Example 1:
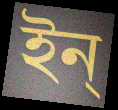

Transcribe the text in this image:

ইন্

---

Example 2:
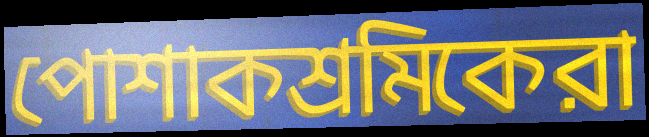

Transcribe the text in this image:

পোশাকশ্রমিকেরা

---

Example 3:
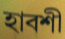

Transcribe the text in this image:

হাবশী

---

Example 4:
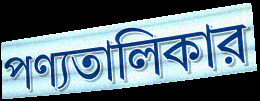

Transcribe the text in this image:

পণ্যতালিকার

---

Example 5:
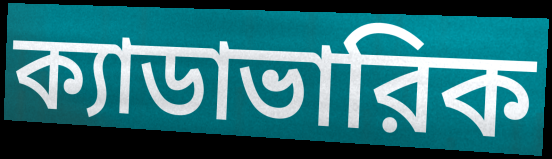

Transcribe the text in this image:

ক্যাডাভারিক